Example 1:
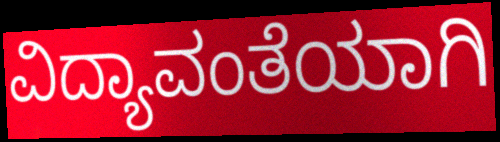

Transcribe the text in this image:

ವಿದ್ಯಾವಂತೆಯಾಗಿ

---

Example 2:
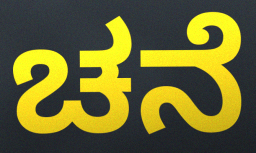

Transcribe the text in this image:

ಚನೆ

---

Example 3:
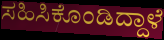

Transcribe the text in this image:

ಸಹಿಸಿಕೊಂಡಿದ್ದಾಳೆ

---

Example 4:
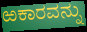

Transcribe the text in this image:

ಱಕಾರವನ್ನು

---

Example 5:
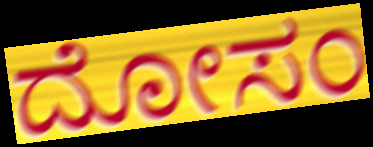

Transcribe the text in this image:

ದೋಸಂ